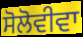
ਸੋਲੋਵੀਵਾ